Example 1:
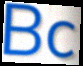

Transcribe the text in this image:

Bc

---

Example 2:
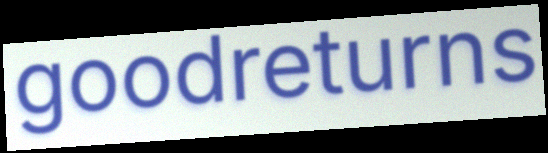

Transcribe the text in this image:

goodreturns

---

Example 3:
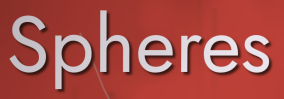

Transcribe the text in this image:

Spheres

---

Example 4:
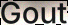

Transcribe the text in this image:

Gout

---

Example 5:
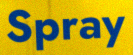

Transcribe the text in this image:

Spray